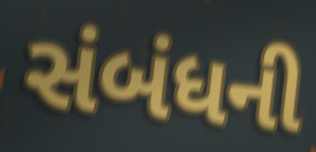
સંબંધની